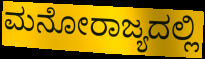
ಮನೋರಾಜ್ಯದಲ್ಲಿ